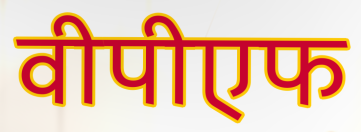
वीपीएफ